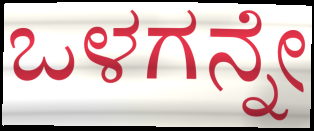
ಒಳಗನ್ನೇ